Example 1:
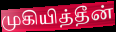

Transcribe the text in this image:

முகியித்தீன்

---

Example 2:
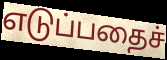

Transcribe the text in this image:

எடுப்பதைச்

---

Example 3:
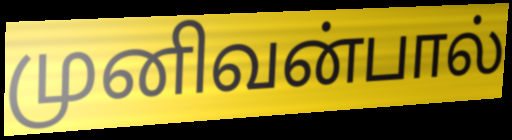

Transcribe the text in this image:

முனிவன்பால்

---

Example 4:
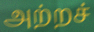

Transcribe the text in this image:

அற்றச்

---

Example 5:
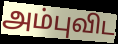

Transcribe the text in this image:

அம்புவிட